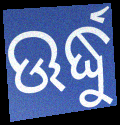
ଊର୍ଦ୍ଧୁ